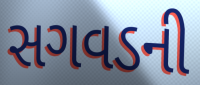
સગવડની